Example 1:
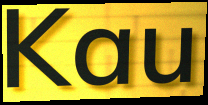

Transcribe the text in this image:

Kau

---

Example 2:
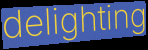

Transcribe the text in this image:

delighting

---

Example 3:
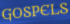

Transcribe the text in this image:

GOSPELS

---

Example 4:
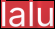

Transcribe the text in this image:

lalu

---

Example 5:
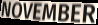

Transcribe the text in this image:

NOVEMBER